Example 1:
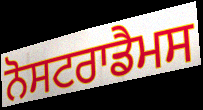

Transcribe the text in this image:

ਨੋਸਟਰਾਡੈਮਸ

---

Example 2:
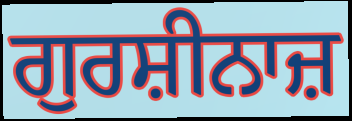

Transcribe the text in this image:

ਗੁਰਸ਼ੀਨਾਜ਼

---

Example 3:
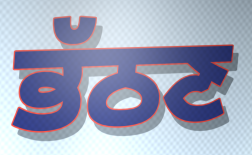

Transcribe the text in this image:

ਭੱਠਣ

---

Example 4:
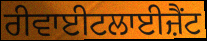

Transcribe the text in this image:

ਰੀਵਾਈਟਲਾਈਜ਼ੈਂਟ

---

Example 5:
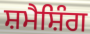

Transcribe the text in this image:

ਸ਼ਮੈਸ਼ਿੰਗ